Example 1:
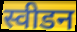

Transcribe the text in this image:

स्वीडन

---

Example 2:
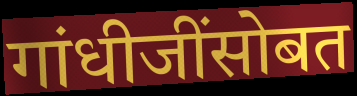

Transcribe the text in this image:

गांधीजींसोबत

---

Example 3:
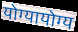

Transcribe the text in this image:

योग्यायोग्य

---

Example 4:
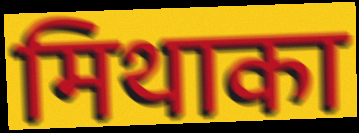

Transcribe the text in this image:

मिथाका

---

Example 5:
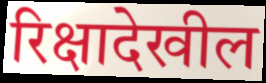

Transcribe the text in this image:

रिक्षादेखील